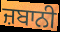
ਜ਼ਬਾਨੀ